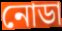
নোডা